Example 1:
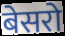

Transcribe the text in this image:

बेसरो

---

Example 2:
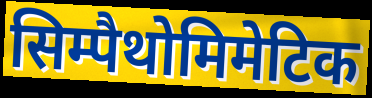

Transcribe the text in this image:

सिम्पैथोमिमेटिक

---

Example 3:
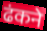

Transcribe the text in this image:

ढंकने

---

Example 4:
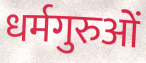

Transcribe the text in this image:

धर्मगुरुओं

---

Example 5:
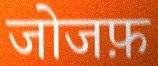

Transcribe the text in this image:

जोजफ़